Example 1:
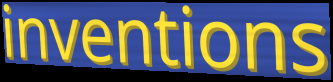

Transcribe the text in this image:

inventions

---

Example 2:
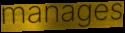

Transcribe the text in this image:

manages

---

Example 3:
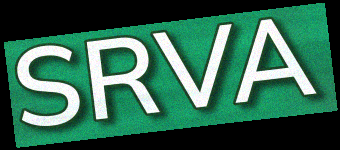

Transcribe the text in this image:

SRVA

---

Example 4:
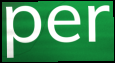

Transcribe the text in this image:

per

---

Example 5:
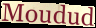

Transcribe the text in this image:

Moudud